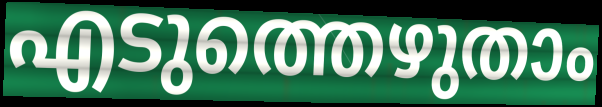
എടുത്തെഴുതാം